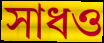
সাধও